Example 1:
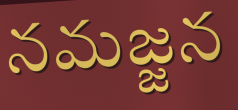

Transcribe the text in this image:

నమజ్జన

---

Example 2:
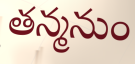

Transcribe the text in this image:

తన్మనుం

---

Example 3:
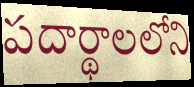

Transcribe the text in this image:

పదార్థాలలోని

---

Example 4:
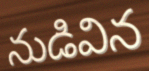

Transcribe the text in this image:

నుడివిన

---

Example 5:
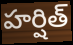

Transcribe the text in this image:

హర్షిత్